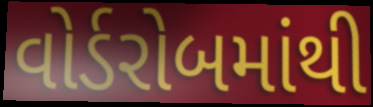
વોર્ડરોબમાંથી